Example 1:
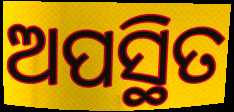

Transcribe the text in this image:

ଅପସ୍ଥିତ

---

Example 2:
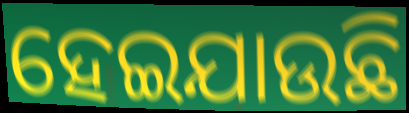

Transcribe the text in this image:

ହେଇଯାଉଛି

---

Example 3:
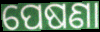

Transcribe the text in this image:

ପେଷଣା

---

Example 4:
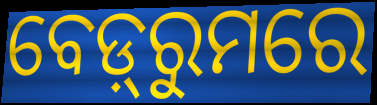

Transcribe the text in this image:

ବେଡ଼୍‌ରୁମରେ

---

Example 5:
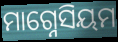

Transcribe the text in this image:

ମାଗ୍ନେସିୟମ